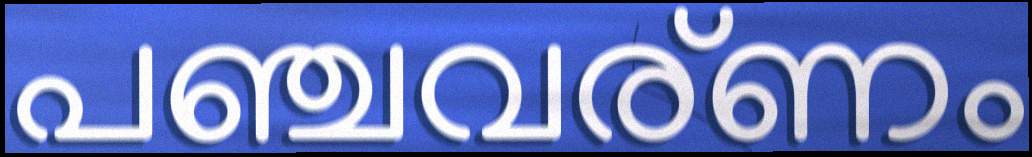
പഞ്ചവര്ണം